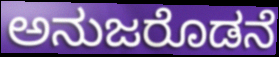
ಅನುಜರೊಡನೆ